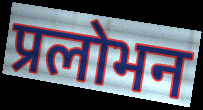
प्रलोभन